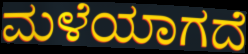
ಮಳೆಯಾಗದೆ